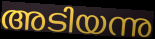
അടിയന്നു